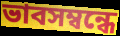
ভাবসম্বন্ধে